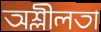
অশ্লীলতা